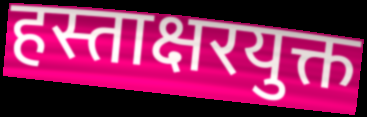
हस्ताक्षरयुक्त